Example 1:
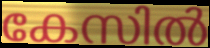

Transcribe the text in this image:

കേസിൽ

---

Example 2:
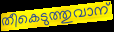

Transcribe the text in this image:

തീകെടുത്തുവാന്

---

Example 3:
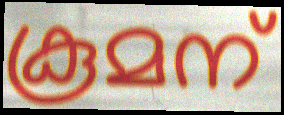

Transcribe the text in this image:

കൂമന്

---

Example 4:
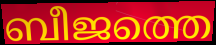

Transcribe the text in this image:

ബീജത്തെ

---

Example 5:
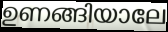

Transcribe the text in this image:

ഉണങ്ങിയാലേ